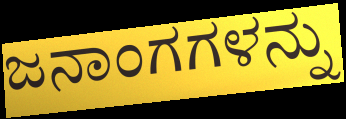
ಜನಾಂಗಗಳನ್ನು